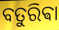
ବତୁରିଵା